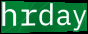
hrday